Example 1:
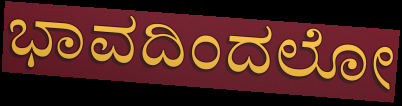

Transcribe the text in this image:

ಭಾವದಿಂದಲೋ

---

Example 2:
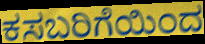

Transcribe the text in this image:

ಕಸಬರಿಗೆಯಿಂದ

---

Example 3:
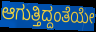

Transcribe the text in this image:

ಆಗುತ್ತಿದ್ದಂತೆಯೇ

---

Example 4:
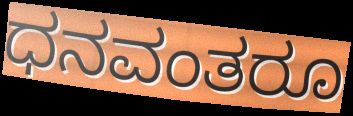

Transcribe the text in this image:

ಧನವಂತರೂ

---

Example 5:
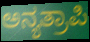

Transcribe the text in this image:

ಅನ್ಯತ್ರಾಪಿ